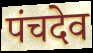
पंचदेव